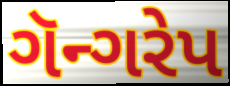
ગૅન્ગરેપ